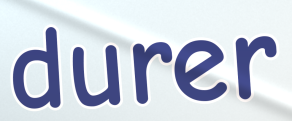
durer